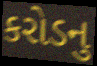
કરોડનુ